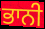
ਭਾਨੀ